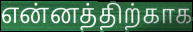
என்னத்திற்காக